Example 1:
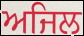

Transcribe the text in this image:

ਅਜਿਲ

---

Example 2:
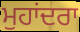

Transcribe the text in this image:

ਮੁਹਾਂਦਰਾ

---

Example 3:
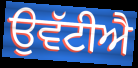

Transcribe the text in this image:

ਉਵੱਟੀਐ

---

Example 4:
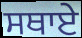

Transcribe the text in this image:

ਸਥਾਏ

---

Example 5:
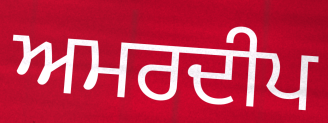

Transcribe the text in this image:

ਅਮਰਦੀਪ